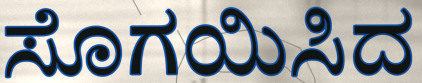
ಸೊಗಯಿಸಿದ